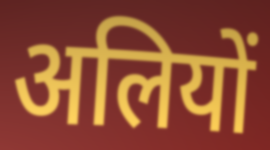
अलियों